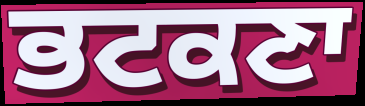
ਭਟਕਣਾ